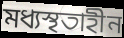
মধ্যস্থতাহীন